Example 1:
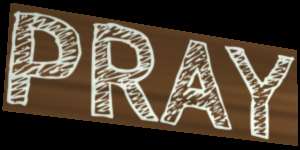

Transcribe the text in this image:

PRAY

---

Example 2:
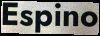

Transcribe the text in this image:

Espino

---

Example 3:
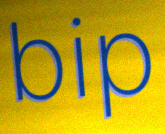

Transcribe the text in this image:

bip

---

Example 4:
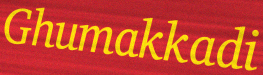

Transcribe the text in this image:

Ghumakkadi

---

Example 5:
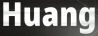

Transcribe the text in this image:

Huang